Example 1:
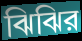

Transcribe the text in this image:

ঝিঝির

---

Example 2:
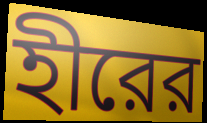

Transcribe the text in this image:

হীরের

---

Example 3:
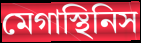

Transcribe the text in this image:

মেগাস্থিনিস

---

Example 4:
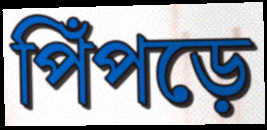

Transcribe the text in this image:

পিঁপড়ে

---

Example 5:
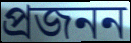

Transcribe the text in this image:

প্রজনন